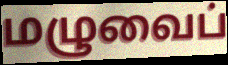
மழுவைப்